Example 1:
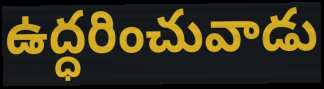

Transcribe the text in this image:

ఉద్ధరించువాడు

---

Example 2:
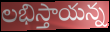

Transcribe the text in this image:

లభిస్తాయన్న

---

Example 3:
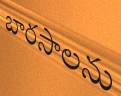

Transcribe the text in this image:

బారసాలను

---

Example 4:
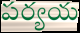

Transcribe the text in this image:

పర్యయ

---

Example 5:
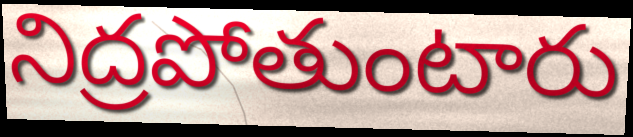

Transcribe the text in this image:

నిద్రపోతుంటారు